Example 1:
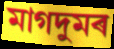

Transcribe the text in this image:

মাগদুমৰ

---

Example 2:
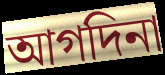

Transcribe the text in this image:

আগদিনা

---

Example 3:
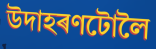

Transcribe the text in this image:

উদাহৰণটোলৈ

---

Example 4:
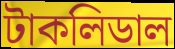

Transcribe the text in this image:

টাকলিডাল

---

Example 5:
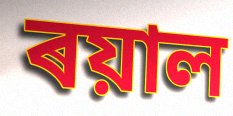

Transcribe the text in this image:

ৰয়াল